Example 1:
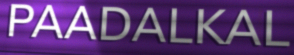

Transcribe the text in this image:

PAADALKAL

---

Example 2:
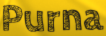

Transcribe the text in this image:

Purna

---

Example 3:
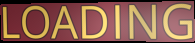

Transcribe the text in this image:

LOADING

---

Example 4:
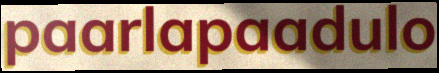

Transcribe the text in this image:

paarlapaadulo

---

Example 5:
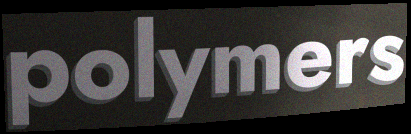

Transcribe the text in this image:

polymers